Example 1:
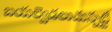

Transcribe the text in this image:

బయల్వెడలుచున్నట్టి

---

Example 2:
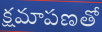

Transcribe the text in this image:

క్షమాపణతో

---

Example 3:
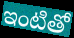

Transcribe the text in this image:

ఇంటితో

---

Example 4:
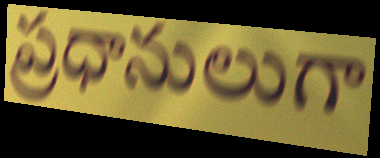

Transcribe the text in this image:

ప్రధానులుగా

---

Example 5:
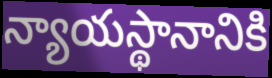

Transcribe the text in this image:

న్యాయస్థానానికి